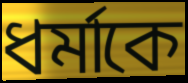
ধর্মাকে